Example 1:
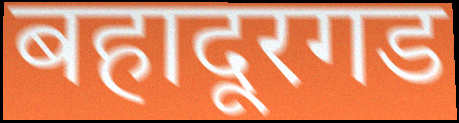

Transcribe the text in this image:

बहादूरगड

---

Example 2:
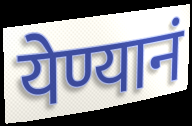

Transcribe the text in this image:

येण्यानं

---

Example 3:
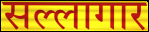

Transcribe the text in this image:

सल्‍लागार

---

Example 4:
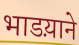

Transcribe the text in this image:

भाडय़ाने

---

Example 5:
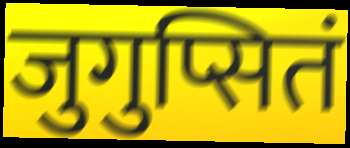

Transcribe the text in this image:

जुगुप्सितं